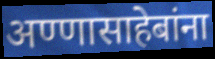
अण्णासाहेबांना